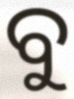
ବୁ